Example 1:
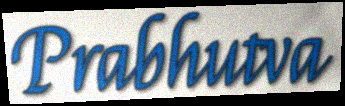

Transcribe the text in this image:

Prabhutva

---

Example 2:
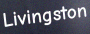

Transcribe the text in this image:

Livingston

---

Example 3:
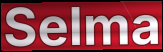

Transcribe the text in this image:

Selma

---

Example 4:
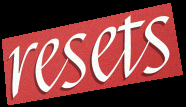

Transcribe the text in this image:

resets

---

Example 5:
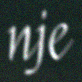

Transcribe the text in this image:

nje